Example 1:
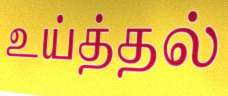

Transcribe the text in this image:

உய்த்தல்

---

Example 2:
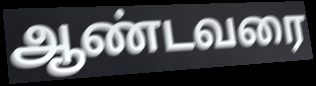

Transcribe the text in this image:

ஆண்டவரை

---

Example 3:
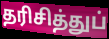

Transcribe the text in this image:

தரிசித்துப்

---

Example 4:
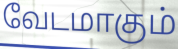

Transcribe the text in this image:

வேடமாகும்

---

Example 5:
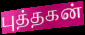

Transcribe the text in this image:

புத்தகன்